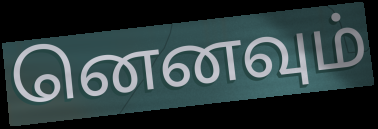
னெனவும்